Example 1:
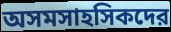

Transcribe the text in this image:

অসমসাহসিকদের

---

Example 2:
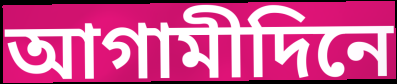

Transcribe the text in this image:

আগামীদিনে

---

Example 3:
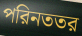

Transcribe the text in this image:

পরিনততর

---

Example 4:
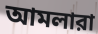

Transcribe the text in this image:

আমলারা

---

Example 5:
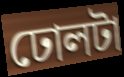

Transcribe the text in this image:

ঢোলটা